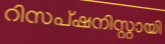
റിസപ്ഷനിസ്റ്റായി